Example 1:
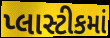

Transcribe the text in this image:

પ્લાસ્ટીકમાં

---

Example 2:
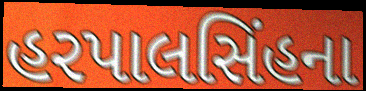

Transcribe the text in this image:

હરપાલસિંહના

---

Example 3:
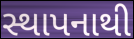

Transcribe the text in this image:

સ્થાપનાથી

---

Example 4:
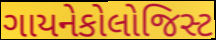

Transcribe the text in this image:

ગાયનેકોલોજિસ્ટ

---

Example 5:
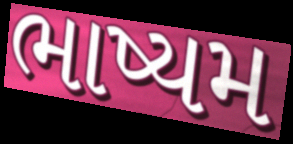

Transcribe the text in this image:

ભાષ્યમ